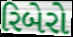
રિબેરો